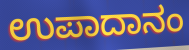
ಉಪಾದಾನಂ